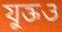
যুক্তও